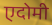
एदोमी